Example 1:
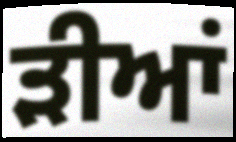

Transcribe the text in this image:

ੜੀਆਂ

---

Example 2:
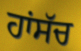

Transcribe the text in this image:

ਹਾਂਸੱਚ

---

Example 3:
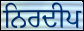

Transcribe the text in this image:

ਨਿਰਦੀਪ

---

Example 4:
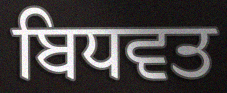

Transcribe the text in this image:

ਬਿਧਵਤ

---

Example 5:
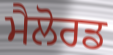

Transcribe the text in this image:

ਮੈਲੋਰਡ